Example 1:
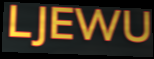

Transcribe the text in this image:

LJEWU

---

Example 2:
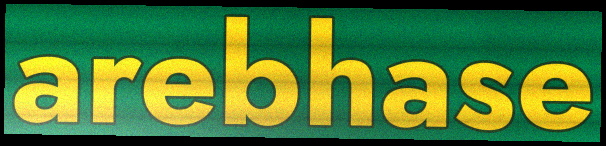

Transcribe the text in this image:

arebhase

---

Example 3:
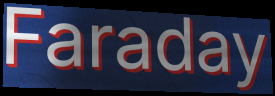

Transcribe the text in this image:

Faraday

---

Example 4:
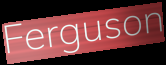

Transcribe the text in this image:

Ferguson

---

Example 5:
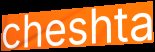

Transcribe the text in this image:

cheshta